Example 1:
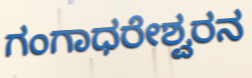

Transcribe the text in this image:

ಗಂಗಾಧರೇಶ್ವರನ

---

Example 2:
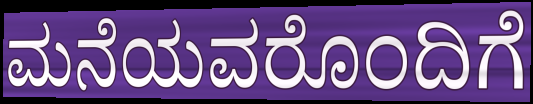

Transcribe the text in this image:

ಮನೆಯವರೊಂದಿಗೆ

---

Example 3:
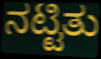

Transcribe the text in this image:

ನಟ್ಟಿತು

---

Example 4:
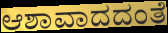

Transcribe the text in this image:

ಆಶಾವಾದದಂತೆ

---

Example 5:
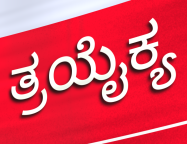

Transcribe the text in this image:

ತ್ರಯೈಕ್ಯ